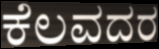
ಕೆಲವದರ